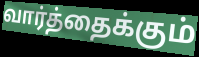
வார்த்தைக்கும்